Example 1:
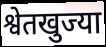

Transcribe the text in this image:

श्वेतखुज्या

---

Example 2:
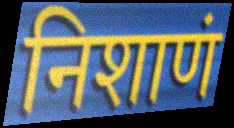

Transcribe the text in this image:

निशाणं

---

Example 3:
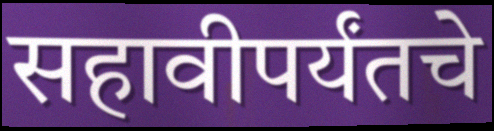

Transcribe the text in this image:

सहावीपर्यंतचे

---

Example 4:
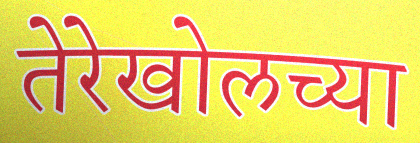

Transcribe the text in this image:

तेरेखोलच्या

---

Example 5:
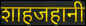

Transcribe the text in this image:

शाहजहानी